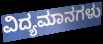
ವಿದ್ಯಮಾನಗಳು